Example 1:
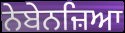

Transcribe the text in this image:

ਨੇਬੇਨਜ਼ਿਆ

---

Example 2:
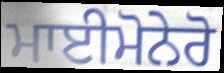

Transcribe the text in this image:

ਮਾਈਮੋਨੇਰੋ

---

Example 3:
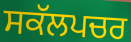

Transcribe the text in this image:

ਸਕੱਲਪਚਰ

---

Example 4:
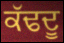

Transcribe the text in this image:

ਕੱਢਦੂ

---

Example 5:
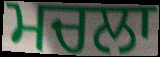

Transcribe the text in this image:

ਮਚਲਾ